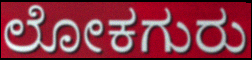
ಲೋಕಗುರು